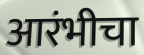
आरंभीचा